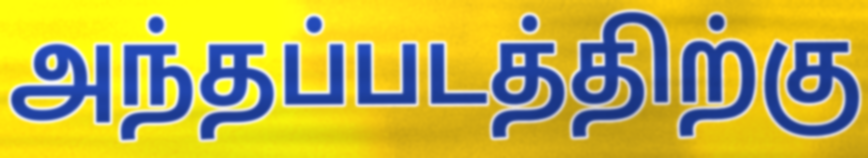
அந்தப்படத்திற்கு